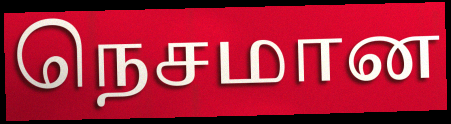
நெசமான